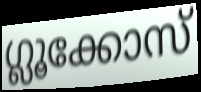
ഗ്ലൂക്കോസ്